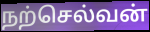
நற்செல்வன்